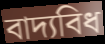
বাদ্যবিধ